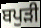
ਬਪੁੜੀ